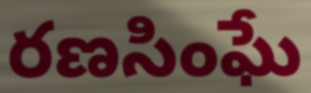
రణసింఘే